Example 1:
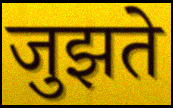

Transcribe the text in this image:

जुझते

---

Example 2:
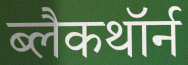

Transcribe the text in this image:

ब्लैकथॉर्न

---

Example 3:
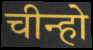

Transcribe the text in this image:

चीन्हो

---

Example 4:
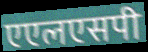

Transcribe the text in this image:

एएलएसपी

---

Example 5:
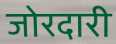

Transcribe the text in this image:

जोरदारी